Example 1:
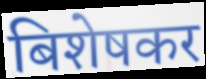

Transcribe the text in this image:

बिशेषकर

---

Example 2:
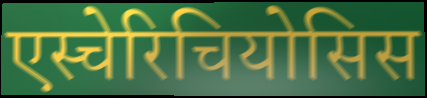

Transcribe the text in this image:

एस्चेरिचियोसिस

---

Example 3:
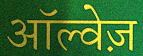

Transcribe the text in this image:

ऑल्वेज़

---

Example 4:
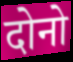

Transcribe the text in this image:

दोनो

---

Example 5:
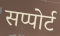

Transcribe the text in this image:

सप्पोर्ट